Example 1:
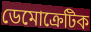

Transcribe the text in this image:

ডেমোক্রেটিক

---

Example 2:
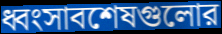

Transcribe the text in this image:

ধ্বংসাবশেষগুলোর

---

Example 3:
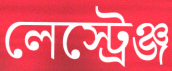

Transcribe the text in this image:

লেস্ট্রেঞ্জ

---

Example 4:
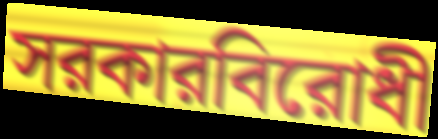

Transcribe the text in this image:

সরকারবিরোধী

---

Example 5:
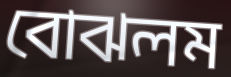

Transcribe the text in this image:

বোঝলম